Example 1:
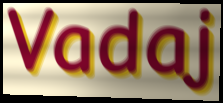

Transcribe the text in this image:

Vadaj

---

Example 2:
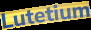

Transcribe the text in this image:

Lutetium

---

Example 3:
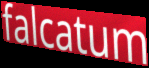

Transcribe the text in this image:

falcatum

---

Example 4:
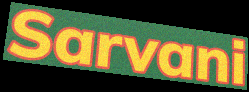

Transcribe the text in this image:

Sarvani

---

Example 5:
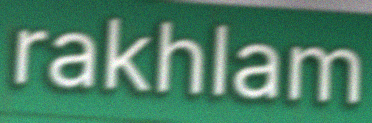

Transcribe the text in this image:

rakhlam